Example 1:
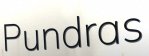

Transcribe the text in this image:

Pundras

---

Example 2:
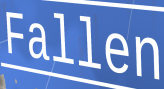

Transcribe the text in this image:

Fallen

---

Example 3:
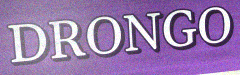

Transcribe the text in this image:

DRONGO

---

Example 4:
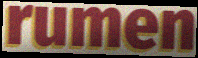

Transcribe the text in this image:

rumen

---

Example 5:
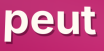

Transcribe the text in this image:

peut